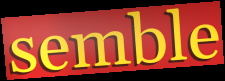
semble